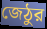
জেঠুর